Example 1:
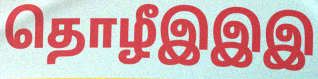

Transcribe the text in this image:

தொழீஇஇஇ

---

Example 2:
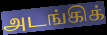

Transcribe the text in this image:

அடங்கிக்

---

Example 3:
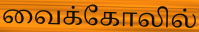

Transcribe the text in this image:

வைக்கோலில்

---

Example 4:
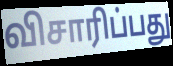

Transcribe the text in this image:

விசாரிப்பது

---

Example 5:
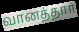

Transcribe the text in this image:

வானத்தார்